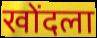
खोंदला